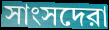
সাংসদেরা